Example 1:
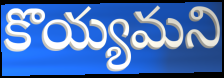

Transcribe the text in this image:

కొయ్యమని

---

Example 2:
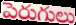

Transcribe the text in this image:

పెరుగులు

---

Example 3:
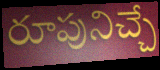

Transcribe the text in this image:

రూపునిచ్చే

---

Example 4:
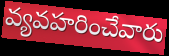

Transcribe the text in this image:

వ్యవహరించేవారు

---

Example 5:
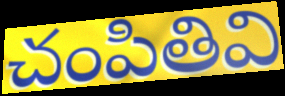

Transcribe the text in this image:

చంపితివి